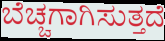
ಬೆಚ್ಚಗಾಗಿಸುತ್ತದೆ